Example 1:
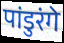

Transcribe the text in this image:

पांडुरंगे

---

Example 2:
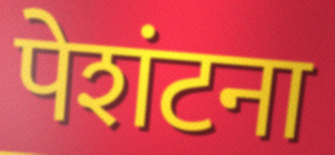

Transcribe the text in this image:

पेशंटना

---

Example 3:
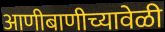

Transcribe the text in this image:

आणीबाणीच्यावेळी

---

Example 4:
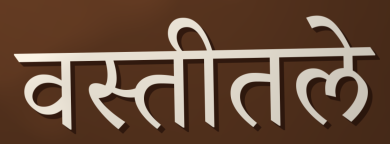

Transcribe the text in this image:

वस्तीतले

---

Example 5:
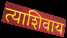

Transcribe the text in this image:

त्याशिवाय